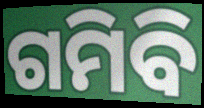
ଗମିବି